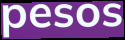
pesos